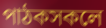
পাঠকসকলে